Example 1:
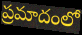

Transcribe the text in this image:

ప్రమాదంలో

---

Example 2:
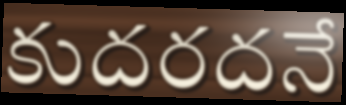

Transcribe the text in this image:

కుదరదనే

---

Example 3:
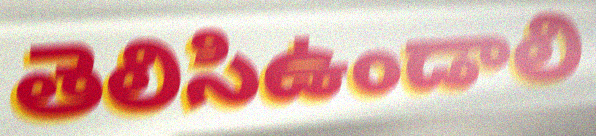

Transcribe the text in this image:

తెలిసిఉండాలి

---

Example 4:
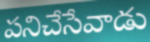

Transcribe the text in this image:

పనిచేసేవాడు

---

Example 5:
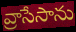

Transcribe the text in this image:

వ్రాసేసాను